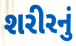
શરીરનું